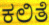
ಕಲಿತೆ